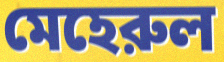
মেহেরুল